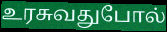
உரசுவதுபோல்